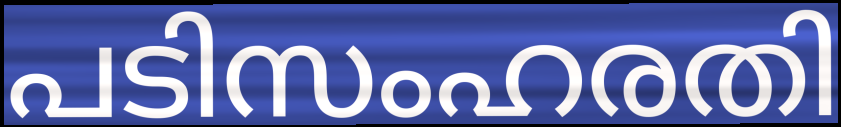
പടിസംഹരതി